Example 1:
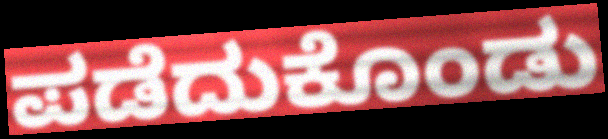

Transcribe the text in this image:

ಪಡೆದುಕೊಂಡು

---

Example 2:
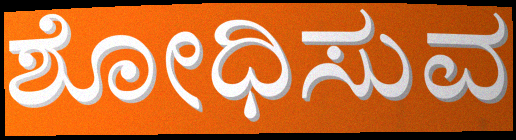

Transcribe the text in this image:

ಶೋಧಿಸುವ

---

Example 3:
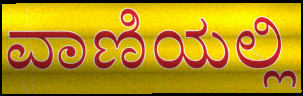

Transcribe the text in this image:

ವಾಣಿಯಲ್ಲಿ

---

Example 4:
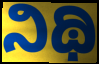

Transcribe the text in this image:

ನಿಥಿ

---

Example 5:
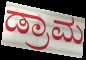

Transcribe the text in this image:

ಡ್ರಾಮ